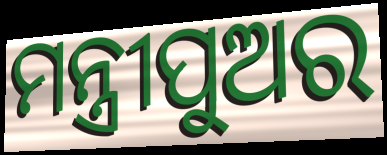
ମନ୍ତ୍ରୀପୁଅର